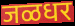
जळधर